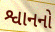
શ્વાનનો